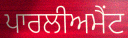
ਪਾਰਲੀਅਮੈਂਟ